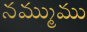
నమ్ముము